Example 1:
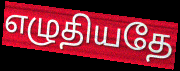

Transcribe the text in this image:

எழுதியதே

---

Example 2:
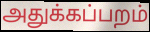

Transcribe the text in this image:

அதுக்கப்பறம்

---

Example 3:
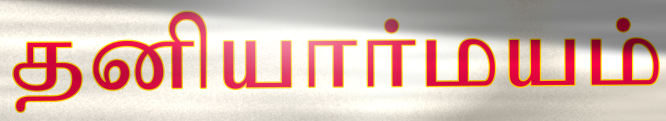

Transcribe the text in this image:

தனியார்மயம்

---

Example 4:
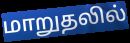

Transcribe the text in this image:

மாறுதலில்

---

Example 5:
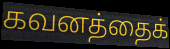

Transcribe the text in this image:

கவனத்தைக்